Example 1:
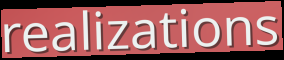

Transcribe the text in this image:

realizations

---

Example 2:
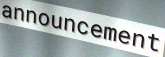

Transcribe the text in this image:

announcement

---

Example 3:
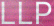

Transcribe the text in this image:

LLP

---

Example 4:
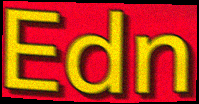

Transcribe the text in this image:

Edn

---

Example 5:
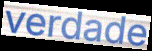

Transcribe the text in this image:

verdade